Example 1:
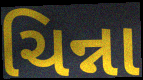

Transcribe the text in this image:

ચિન્ના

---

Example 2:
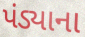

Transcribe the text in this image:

પંડ્યાના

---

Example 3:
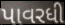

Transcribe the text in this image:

પાવરધી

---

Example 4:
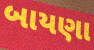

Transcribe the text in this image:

બાયણા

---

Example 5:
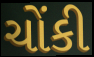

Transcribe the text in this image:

ચોંકી